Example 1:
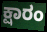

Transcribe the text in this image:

ಕ್ಷಾರಂ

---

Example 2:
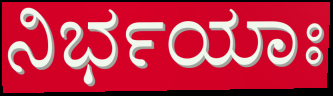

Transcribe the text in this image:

ನಿರ್ಭಯಾಃ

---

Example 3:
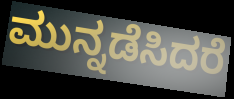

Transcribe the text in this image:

ಮುನ್ನಡೆಸಿದರೆ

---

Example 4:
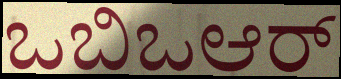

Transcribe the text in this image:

ಒಬಿಒಆರ್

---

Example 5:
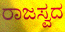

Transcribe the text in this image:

ರಾಜಸ್ವದ